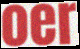
oer